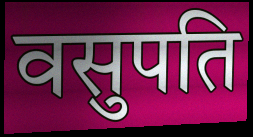
वसुपति